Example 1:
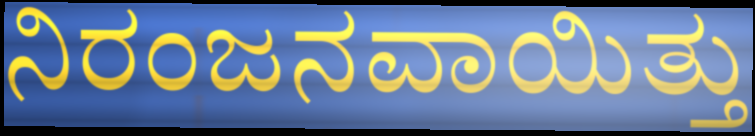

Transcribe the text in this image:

ನಿರಂಜನವಾಯಿತ್ತು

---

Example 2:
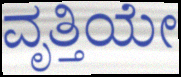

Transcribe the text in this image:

ವೃತ್ತಿಯೇ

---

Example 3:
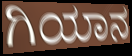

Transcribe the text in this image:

ಗಿಯಾನ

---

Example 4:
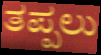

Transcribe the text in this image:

ತಪ್ಪಲು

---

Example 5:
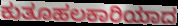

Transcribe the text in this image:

ಕುತೂಹಲಕಾರಿಯಾದ